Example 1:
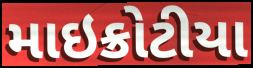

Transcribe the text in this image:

માઇક્રોટીયા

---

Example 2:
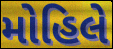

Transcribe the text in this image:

મોહિલે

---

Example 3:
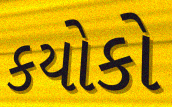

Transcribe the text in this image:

કયોકો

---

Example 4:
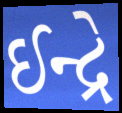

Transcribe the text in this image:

ઈન્દ્રે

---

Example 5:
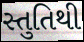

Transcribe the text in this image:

સ્તુતિથી